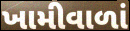
ખામીવાળાં